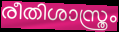
രീതിശാസ്ത്രം